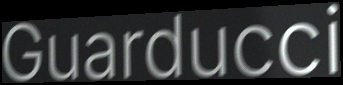
Guarducci